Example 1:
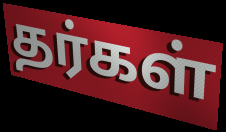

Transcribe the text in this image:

தர்கள்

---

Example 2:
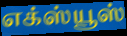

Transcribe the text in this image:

எக்ஸ்யூஸ்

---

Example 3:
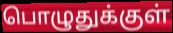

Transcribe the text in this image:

பொழுதுக்குள்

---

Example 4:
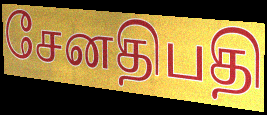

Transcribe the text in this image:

சேனதிபதி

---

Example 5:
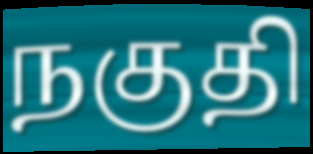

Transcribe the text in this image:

நகுதி